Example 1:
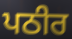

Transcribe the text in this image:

ਪਠੀਰ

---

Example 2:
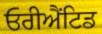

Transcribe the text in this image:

ਓਰੀਐਂਟਿਡ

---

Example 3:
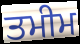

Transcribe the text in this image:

ਤਮੀਮ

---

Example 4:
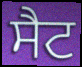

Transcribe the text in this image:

ਸੈਟ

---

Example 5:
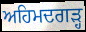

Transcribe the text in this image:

ਅਹਿਮਦਗੜ੍ਹ